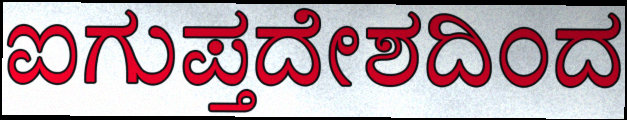
ಐಗುಪ್ತದೇಶದಿಂದ